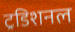
ट्रडिशनल